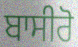
ਬਾਸੀਰੋ